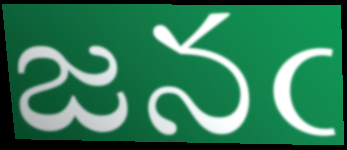
జనఁ